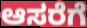
ಆಸರೆಗೆ